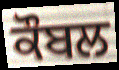
ਕੌਬਲ